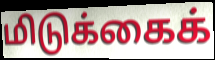
மிடுக்கைக்